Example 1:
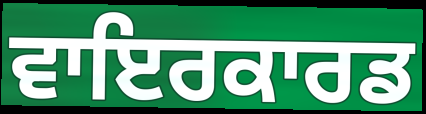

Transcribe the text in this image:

ਵਾਇਰਕਾਰਡ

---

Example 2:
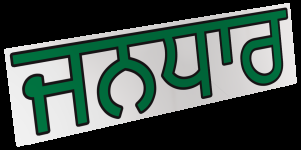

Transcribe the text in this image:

ਜਨਧਾਰ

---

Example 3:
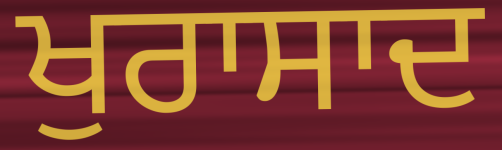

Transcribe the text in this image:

ਖੁਰਾਸਾਦ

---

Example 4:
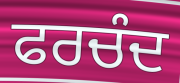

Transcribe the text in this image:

ਫਰਚੰਦ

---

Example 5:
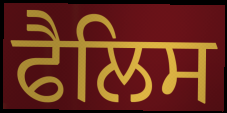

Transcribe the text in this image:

ਫੈਲਿਸ